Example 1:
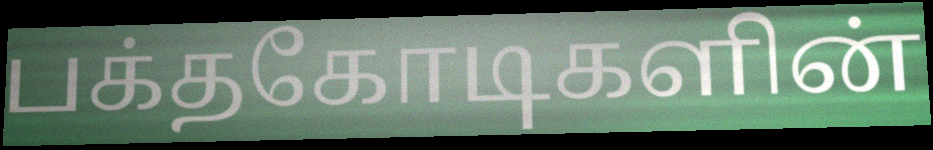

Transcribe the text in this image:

பக்தகோடிகளின்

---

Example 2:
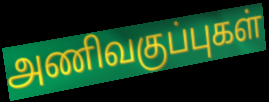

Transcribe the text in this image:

அணிவகுப்புகள்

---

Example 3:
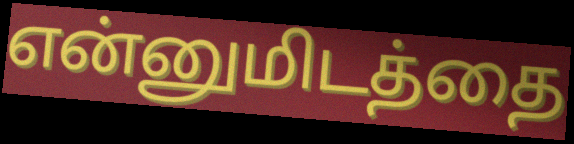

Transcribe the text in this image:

என்னுமிடத்தை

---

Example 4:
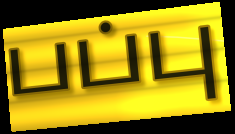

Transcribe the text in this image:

பப்பு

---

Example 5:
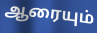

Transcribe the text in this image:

ஆரையும்